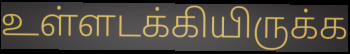
உள்ளடக்கியிருக்க